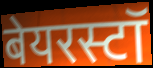
बेयरस्टॉ